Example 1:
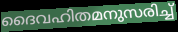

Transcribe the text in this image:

ദൈവഹിതമനുസരിച്ച്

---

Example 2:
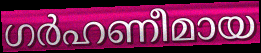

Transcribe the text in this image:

ഗർഹണീമായ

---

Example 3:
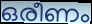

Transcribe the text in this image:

ഒരീണം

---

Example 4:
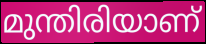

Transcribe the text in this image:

മുന്തിരിയാണ്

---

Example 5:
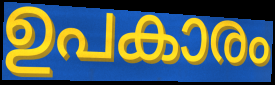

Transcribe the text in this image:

ഉപകാരം